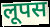
लूपस